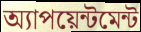
অ্যাপয়েন্টমেন্ট